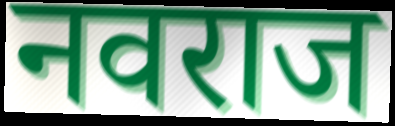
नवराज